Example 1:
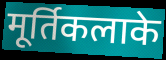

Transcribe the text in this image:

मूर्तिकलाके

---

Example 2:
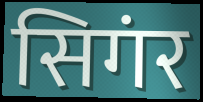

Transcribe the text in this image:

सिगंर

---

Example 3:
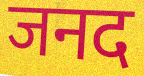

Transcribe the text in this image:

जनद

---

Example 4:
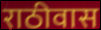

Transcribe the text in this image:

राठीवास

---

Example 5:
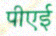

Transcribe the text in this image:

पीएई